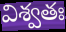
విశ్వతః